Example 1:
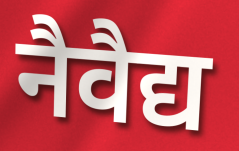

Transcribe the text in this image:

नैवैद्य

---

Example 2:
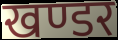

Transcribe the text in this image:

खण्डर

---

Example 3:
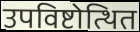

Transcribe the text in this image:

उपविष्टोत्थित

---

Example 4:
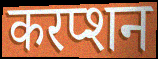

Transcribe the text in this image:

करप्शन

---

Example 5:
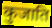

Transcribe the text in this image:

कुजाति